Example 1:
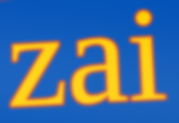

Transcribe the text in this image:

zai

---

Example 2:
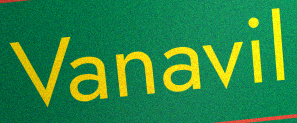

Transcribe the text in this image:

Vanavil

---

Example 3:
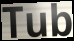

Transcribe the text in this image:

Tub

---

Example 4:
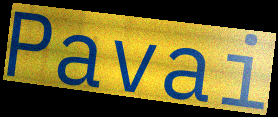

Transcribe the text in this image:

Pavai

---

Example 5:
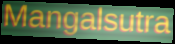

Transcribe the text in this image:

Mangalsutra